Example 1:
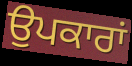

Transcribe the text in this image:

ਉਪਕਾਰਾਂ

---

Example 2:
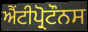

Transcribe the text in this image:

ਐਂਟੀਪ੍ਰੋਟੌਨਸ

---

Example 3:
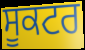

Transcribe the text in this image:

ਸੂਕਟਰ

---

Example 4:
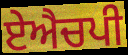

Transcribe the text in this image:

ਏਐਚਪੀ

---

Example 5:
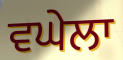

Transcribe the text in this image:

ਵਘੇਲਾ